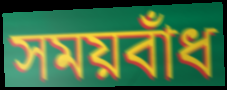
সময়বাঁধ